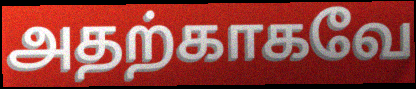
அதற்காகவே